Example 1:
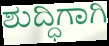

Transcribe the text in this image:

ಶುದ್ಧಿಗಾಗಿ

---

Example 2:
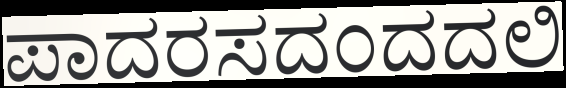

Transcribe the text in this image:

ಪಾದರಸದಂದದಲಿ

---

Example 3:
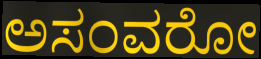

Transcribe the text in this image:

ಅಸಂವರೋ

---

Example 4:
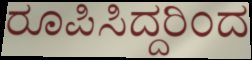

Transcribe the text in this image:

ರೂಪಿಸಿದ್ದರಿಂದ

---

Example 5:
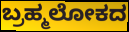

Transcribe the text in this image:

ಬ್ರಹ್ಮಲೋಕದ